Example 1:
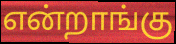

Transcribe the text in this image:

என்றாங்கு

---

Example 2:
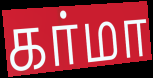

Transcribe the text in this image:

கர்மா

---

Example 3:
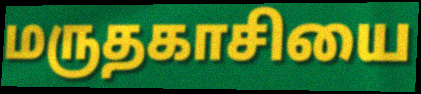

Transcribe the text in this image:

மருதகாசியை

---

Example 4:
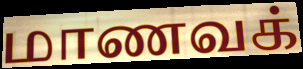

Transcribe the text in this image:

மாணவக்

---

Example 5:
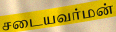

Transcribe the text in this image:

சடையவர்மன்